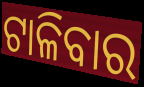
ଟାଳିବାର